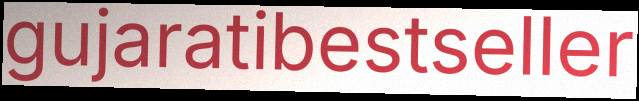
gujaratibestseller